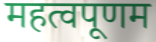
महत्वपूणम